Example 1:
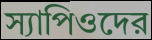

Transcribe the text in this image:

স্যাপিওদের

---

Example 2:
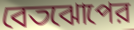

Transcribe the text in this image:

বেতঝোপের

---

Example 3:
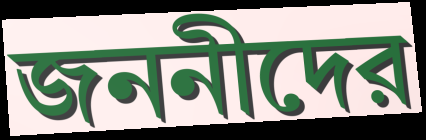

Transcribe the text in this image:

জননীদের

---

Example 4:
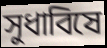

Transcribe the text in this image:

সুধাবিষে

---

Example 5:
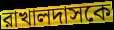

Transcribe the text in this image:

রাখালদাসকে